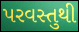
પરવસ્તુથી